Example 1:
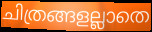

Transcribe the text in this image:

ചിത്രങ്ങളല്ലാതെ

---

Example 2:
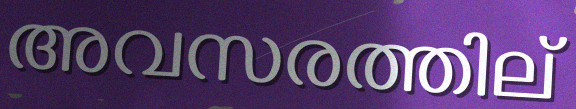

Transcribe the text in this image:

അവസരത്തില്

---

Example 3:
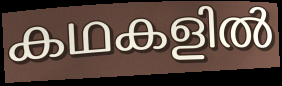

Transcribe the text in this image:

കഥകളിൽ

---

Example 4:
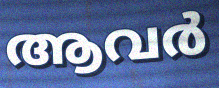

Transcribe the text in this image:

ആവർ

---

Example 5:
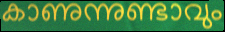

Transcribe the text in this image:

കാണുന്നുണ്ടാവും